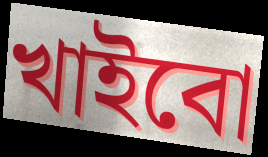
খাইবো